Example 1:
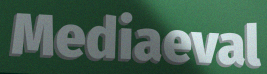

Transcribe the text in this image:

Mediaeval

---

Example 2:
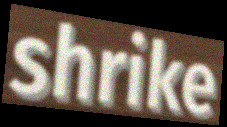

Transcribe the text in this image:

shrike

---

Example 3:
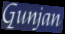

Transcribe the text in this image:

Gunjan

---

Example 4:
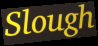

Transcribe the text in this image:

Slough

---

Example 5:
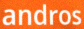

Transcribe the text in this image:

andros